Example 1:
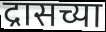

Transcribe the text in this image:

द्रासच्या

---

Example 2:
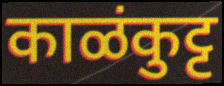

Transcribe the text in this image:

काळंकुट्ट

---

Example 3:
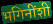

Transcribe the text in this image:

भगिनींशी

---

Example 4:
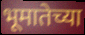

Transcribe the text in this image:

भूमातेच्या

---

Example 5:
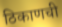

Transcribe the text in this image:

ठिकाणची